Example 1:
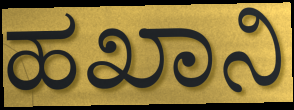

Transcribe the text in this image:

ಹಖಾನಿ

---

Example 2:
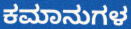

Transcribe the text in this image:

ಕಮಾನುಗಳ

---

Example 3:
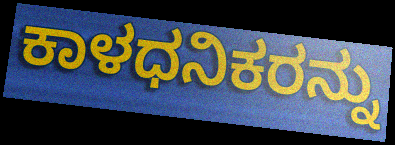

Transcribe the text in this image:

ಕಾಳಧನಿಕರನ್ನು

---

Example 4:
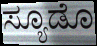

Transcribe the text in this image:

ಸ್ಯೂಡೊ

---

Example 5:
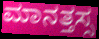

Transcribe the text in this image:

ಮಾನತ್ತಸ್ಸ